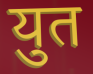
युत